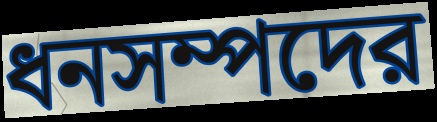
ধনসম্পদের